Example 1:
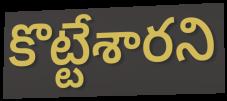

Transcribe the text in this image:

కొట్టేశారని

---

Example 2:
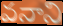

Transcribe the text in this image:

వనాని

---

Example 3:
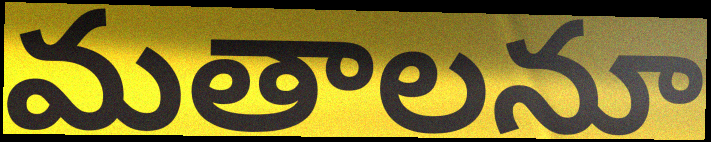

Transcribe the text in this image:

మతాలనూ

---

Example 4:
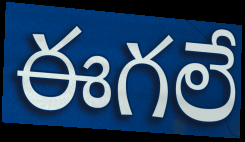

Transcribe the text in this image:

ఈగలే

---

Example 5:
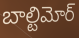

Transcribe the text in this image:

బాల్టిమోర్